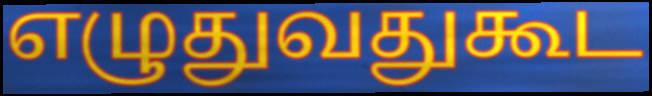
எழுதுவதுகூட